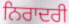
ਨਿਰਾਦਰੀ